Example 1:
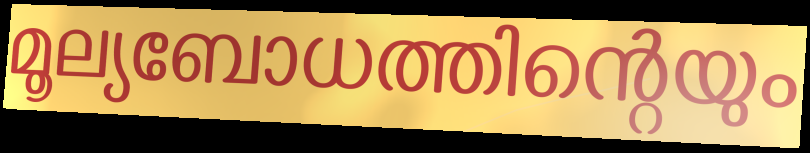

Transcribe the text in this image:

മൂല്യബോധത്തിന്റെയും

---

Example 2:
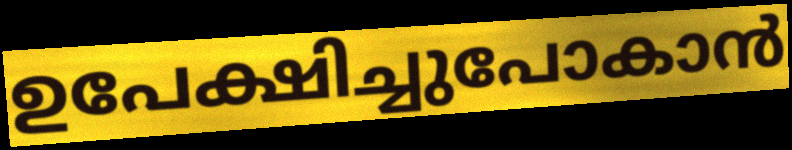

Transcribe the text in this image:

ഉപേക്ഷിച്ചുപോകാൻ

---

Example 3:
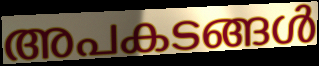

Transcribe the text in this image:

അപകടങ്ങൾ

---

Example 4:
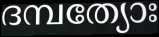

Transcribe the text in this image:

ദമ്പത്യോഃ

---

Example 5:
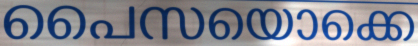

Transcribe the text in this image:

പൈസയൊക്കെ